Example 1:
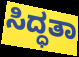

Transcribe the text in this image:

ಸಿದ್ಧತಾ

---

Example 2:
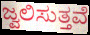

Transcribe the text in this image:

ಜ್ವಲಿಸುತ್ತವೆ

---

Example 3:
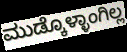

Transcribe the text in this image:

ಮುಡ್ಕೊಳ್ಳಾಂಗಿಲ್ಲ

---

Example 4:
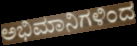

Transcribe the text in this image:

ಅಭಿಮಾನಿಗಳಿಂದ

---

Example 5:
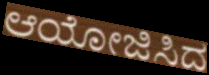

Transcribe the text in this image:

ಆಯೋಜಿಸಿದ